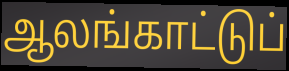
ஆலங்காட்டுப்